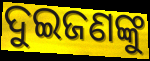
ଦୁଇଜଣଙ୍କୁ